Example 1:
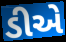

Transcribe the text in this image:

ડીએ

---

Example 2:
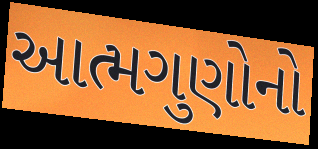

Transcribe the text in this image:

આત્મગુણોનો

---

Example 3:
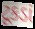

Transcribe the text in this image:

ટૂકડાં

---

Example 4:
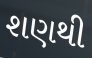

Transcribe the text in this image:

શણથી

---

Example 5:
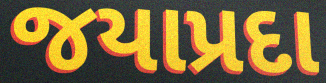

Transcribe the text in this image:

જયાપ્રદા